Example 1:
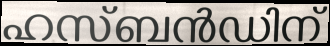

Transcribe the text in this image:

ഹസ്ബൻഡിന്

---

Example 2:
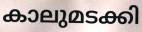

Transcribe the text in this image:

കാലുമടക്കി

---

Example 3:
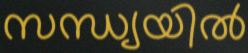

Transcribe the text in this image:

സന്ധ്യയിൽ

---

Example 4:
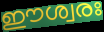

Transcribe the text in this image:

ഈശ്വരഃ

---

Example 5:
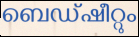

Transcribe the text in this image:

ബെഡ്ഷീറ്റും